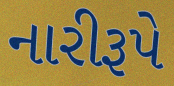
નારીરૂપે